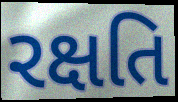
રક્ષતિ